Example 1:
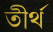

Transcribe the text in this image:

তীর্থ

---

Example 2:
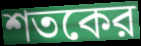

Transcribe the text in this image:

শতকের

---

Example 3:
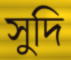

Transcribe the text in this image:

সুদি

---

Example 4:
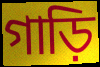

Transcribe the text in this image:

গাড়ি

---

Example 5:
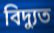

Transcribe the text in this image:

বিদ্যুত